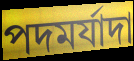
পদমৰ্যাদা